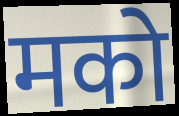
मको